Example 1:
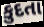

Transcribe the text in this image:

કુદતા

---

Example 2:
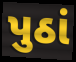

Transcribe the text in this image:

પુઠાં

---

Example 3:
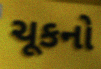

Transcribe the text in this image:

ચૂકનો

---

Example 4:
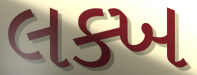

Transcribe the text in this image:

લક્ખ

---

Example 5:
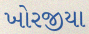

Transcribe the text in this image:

ખોરજીયા